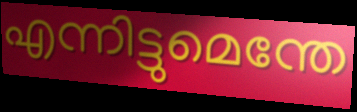
എന്നിട്ടുമെന്തേ